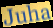
Juha